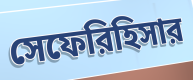
সেফেরিহিসার